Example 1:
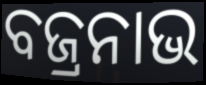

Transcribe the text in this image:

ବଜ୍ରନାଭ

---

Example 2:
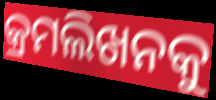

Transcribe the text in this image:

କ୍ରମଲିଖନକୁ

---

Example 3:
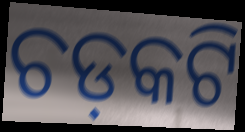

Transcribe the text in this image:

ଚଡ଼କଟି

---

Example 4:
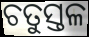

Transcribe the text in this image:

ଚତୁସ୍ତଳ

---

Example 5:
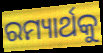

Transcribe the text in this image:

ରମ୍ୟାର୍ଥକୁ